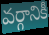
వర్గానికీ